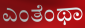
ಎಂತೆಂಥಾ